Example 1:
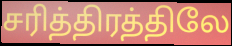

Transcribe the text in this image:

சரித்திரத்திலே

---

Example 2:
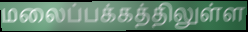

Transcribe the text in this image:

மலைப்பக்கத்திலுள்ள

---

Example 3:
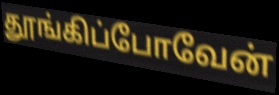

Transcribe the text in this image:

தூங்கிப்போவேன்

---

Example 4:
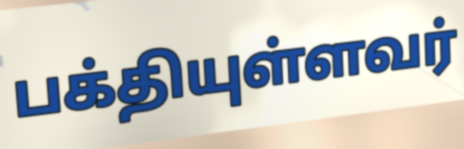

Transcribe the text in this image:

பக்தியுள்ளவர்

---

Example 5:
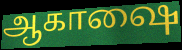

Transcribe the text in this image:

ஆகாஷை